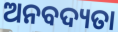
ଅନବଦ୍ୟତା